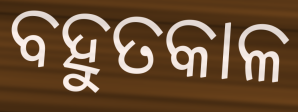
ବହୁତକାଳ